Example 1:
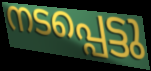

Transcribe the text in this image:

നടപ്പെട്ടു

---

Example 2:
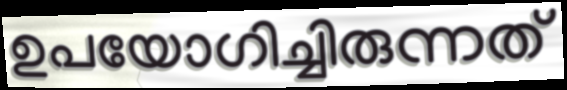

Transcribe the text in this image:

ഉപയോഗിച്ചിരുന്നത്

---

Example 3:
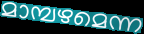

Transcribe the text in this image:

മാമ്പഴമെന്ന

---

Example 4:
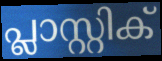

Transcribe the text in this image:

പ്ലാസ്റ്റിക്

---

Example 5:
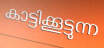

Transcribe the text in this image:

കാട്ടിക്കൂട്ടുന്ന